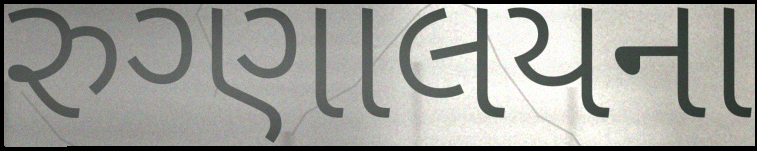
રુગ્ણાલયના